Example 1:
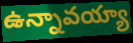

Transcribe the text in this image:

ఉన్నావయ్యా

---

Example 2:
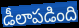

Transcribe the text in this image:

డీలాపడింది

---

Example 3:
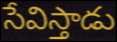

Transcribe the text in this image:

సేవిస్తాడు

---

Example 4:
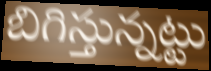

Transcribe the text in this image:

బిగిస్తున్నట్టు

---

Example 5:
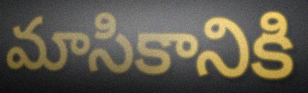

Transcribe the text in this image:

మాసికానికి